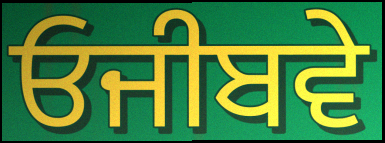
ਓਜੀਬਵੇ